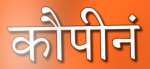
कौपीनं